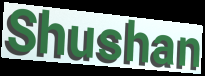
Shushan